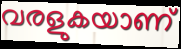
വരളുകയാണ്